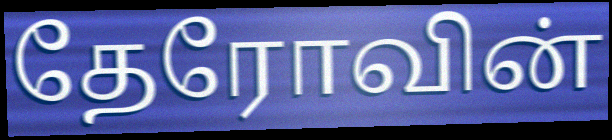
தேரோவின்